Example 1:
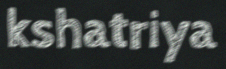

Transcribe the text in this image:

kshatriya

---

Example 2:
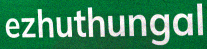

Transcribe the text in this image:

ezhuthungal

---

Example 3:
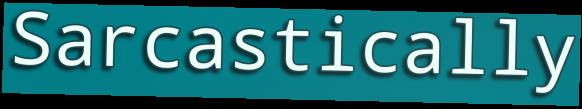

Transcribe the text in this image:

Sarcastically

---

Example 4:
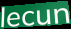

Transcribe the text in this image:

lecun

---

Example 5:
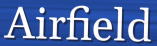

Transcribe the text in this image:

Airfield